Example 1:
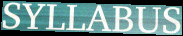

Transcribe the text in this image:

SYLLABUS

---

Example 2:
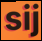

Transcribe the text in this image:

sij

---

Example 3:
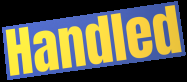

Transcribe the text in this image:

Handled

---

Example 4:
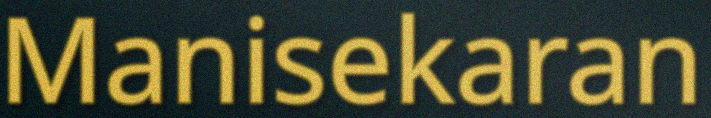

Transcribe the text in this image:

Manisekaran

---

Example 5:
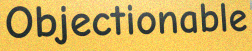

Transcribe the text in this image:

Objectionable